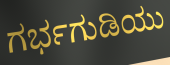
ಗರ್ಭಗುಡಿಯು